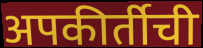
अपकीर्तीची